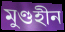
মুণ্ডহীন